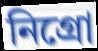
নিগ্ৰো